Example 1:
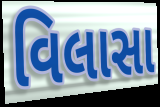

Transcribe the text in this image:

વિલાસા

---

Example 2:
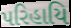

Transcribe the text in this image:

પરિહાયિ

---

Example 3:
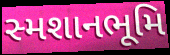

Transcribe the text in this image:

સ્મશાનભૂમિ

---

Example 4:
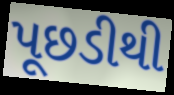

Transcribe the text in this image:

પૂછડીથી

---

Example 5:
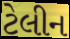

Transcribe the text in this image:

ટેલીન